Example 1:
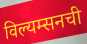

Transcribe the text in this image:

विल्यम्सनची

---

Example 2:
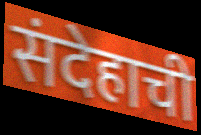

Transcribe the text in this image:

संदेहाची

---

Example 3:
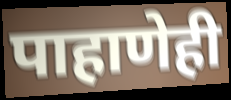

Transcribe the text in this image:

पाहाणेही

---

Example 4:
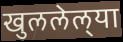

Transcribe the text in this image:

खुललेल्या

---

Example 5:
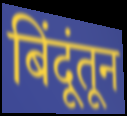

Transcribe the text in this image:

बिंदूंतून